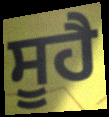
ਸੂਹੈ